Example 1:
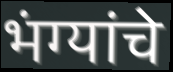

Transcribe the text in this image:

भंग्यांचे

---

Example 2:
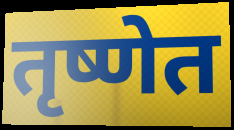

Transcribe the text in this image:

तृष्णेत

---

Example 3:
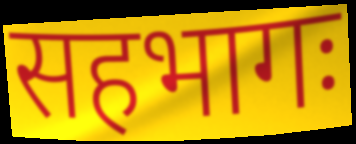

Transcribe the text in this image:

सहभागः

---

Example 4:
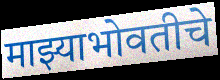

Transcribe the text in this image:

माझ्याभोवतीचे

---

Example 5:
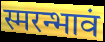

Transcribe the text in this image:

स्मरन्भावं